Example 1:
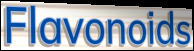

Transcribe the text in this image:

Flavonoids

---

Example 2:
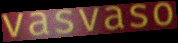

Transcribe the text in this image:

vasvaso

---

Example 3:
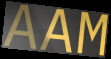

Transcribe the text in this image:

AAM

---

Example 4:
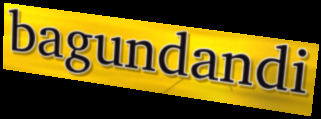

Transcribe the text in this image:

bagundandi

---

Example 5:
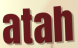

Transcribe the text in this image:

atah